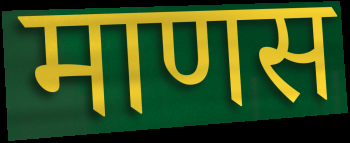
माणस